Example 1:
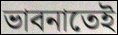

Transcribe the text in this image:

ভাবনাতেই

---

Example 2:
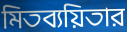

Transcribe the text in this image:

মিতব্যয়িতার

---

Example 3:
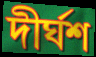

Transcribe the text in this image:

দীর্ঘশ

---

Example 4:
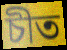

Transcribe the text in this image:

চীত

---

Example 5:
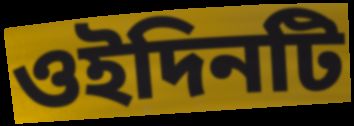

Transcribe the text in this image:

ওইদিনটি